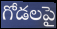
గోడలపై